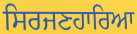
ਸਿਰਜਣਹਾਰਿਆ